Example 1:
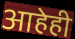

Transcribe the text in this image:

आहेही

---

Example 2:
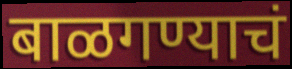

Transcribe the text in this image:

बाळगण्याचं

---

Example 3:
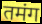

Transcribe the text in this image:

तमंग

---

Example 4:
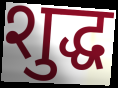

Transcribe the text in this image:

शुद्ध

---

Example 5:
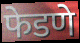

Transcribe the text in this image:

फेडणे